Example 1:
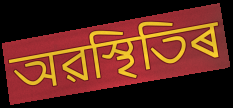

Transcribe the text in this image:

অৱস্থিতিৰ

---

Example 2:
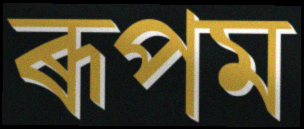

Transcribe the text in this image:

ৰূপম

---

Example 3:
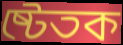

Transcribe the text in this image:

ষ্টেতক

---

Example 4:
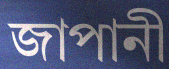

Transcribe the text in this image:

জাপানী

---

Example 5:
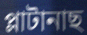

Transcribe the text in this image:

প্লাটানাছ